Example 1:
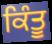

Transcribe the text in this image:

ਕਿੰਤੂ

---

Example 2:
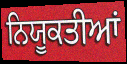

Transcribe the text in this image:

ਨਿਯੂਕਤੀਆਂ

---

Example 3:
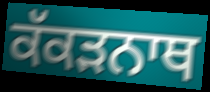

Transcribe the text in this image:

ਕੱਕੜਨਾਥ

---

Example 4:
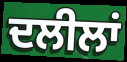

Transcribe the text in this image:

ਦਲੀਲਾਂ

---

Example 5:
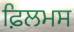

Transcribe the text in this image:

ਫ਼ਿਲਮਸ